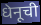
धेनूची